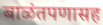
बाळंतपणासह